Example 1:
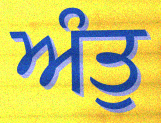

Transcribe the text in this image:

ਅੰਤੁ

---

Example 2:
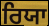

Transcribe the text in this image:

ਰਿਯਾ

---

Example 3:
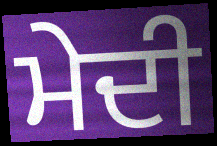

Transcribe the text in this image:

ਮੇਦੀ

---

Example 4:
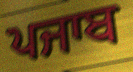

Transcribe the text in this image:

ਪਜਾਬ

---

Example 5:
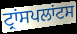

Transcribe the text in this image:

ਟ੍ਰਾਂਸਪਲਾਂਟਸ